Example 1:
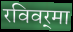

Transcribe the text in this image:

रविवर्मा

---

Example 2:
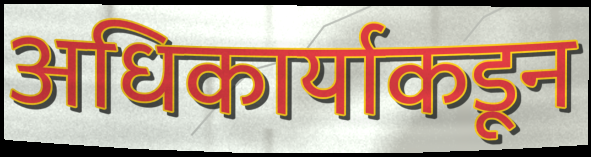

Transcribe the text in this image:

अधिकार्याकडून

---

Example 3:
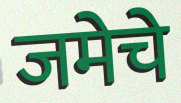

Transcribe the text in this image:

जमेचे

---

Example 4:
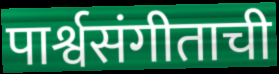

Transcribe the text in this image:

पार्श्वसंगीताची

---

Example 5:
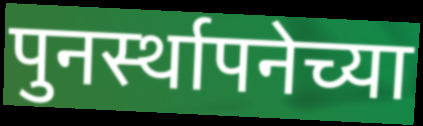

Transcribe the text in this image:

पुनर्स्थापनेच्या